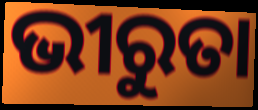
ଭୀରୁତା